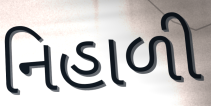
નિહાળી